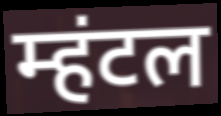
म्हंटल